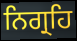
ਨਿਗ੍ਰਹਿ